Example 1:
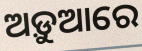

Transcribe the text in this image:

ଅଡ଼ୁଆରେ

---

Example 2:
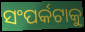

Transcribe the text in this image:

ସଂପର୍କଟାକୁ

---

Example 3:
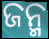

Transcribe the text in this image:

ଜନ୍ମ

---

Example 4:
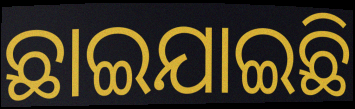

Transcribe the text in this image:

ଛାଇଯାଇଛି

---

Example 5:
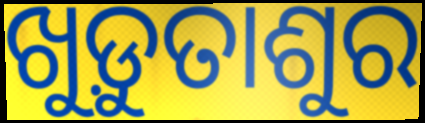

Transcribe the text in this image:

ଖୁଡ଼ୁତାଶୁର